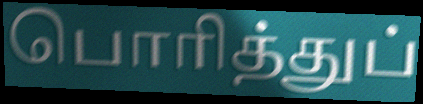
பொரித்துப்